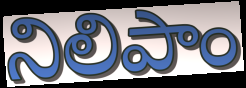
నిలిపాం